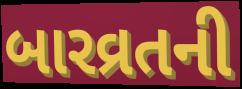
બારવ્રતની